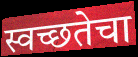
स्वच्छतेचा